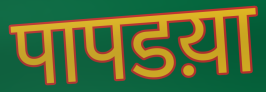
पापडय़ा